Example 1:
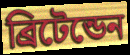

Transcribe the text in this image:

ব্রিটেন্ডেন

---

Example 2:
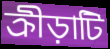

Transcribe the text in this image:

ক্রীড়াটি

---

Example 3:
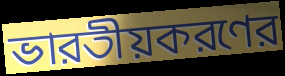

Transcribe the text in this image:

ভারতীয়করণের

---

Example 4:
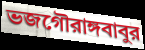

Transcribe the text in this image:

ভজগৌরাঙ্গবাবুর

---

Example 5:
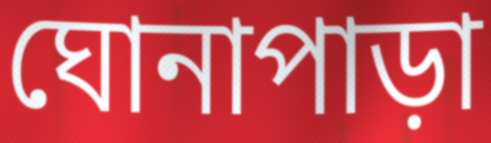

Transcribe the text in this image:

ঘোনাপাড়া